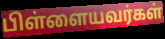
பிள்ளையவர்கள்